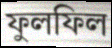
ফুলফিল